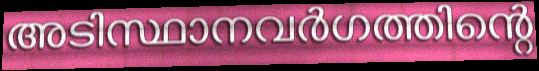
അടിസ്ഥാനവർഗത്തിന്റെ